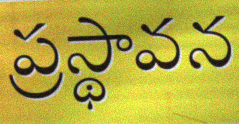
ప్రస్థావన